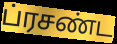
ப்ரசண்ட